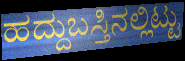
ಹದ್ದುಬಸ್ತಿನಲ್ಲಿಟ್ಟು